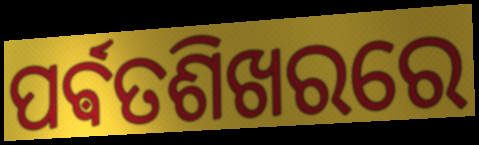
ପର୍ଵତଶିଖରରେ